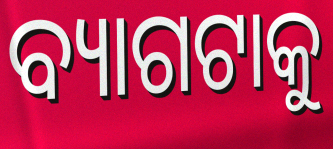
ବ୍ୟାଗଟାକୁ